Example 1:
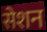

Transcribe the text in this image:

सेशन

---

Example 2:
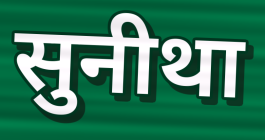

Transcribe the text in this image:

सुनीथा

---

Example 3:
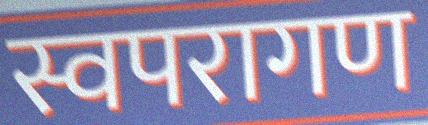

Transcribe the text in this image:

स्वपरागण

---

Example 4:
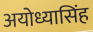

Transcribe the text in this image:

अयोध्यासिंह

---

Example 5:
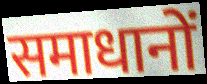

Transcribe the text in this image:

समाधानों